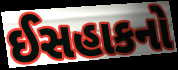
ઈસહાકનો